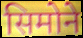
सिमोने